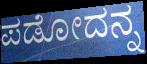
ಪಡೋದನ್ನ